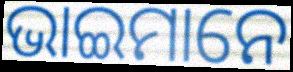
ଭାଇମାନେ